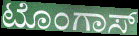
ಟೊಂಗಾಸ್